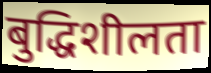
बुद्धिशीलता